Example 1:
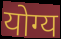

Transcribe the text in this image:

योग्य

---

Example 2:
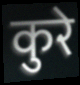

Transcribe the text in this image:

कुरे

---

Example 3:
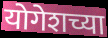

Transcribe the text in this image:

योगेशच्या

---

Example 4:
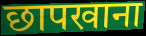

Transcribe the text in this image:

छापखाना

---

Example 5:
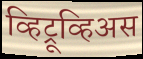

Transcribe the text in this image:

व्हिट्रूव्हिअस